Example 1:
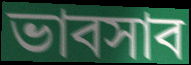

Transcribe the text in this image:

ভাবসাব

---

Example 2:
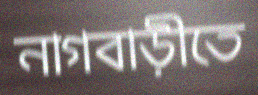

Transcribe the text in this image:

নাগবাড়ীতে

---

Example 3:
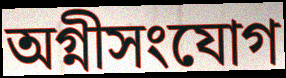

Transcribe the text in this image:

অগ্নীসংযোগ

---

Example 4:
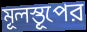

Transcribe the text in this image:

মূলস্তূপের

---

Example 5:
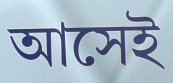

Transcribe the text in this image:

আসেই